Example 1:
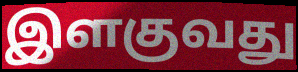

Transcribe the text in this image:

இளகுவது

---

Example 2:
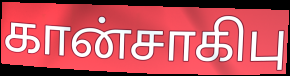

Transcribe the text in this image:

கான்சாகிபு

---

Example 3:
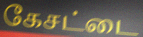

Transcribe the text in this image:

கேசட்டை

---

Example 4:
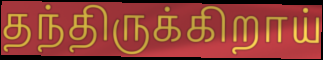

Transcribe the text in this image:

தந்திருக்கிறாய்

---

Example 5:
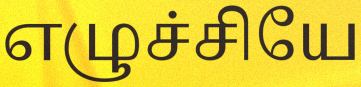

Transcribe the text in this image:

எழுச்சியே